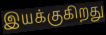
இயக்குகிறது